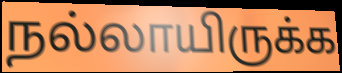
நல்லாயிருக்க